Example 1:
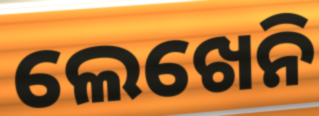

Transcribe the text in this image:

ଲେଖେନି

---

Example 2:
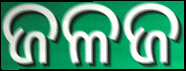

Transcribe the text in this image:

ଜଳଜ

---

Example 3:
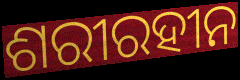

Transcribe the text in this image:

ଶରୀରହୀନ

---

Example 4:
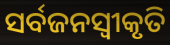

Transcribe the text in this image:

ସର୍ବଜନସ୍ୱୀକୃତି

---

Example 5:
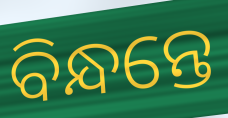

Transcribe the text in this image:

ବିନ୍ଧନ୍ତେ